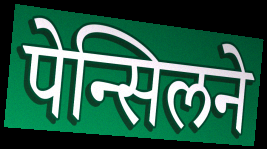
पेन्सिलने